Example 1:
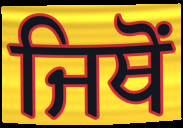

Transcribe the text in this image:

ਜਿਥੋਂ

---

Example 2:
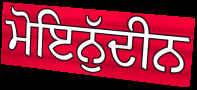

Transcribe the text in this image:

ਮੋਇਨੁੱਦੀਨ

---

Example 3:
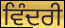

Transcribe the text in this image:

ਵਿੰਦਰੀ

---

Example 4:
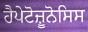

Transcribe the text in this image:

ਹੈਪੇਟੋਜ਼ੂਨੋਸਿਸ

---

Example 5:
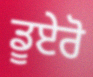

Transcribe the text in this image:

ਡੂਏਰੋ